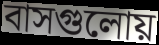
বাসগুলোয়